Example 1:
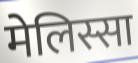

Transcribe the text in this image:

मेलिस्सा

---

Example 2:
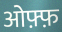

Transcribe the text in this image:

ओफ़्फ़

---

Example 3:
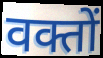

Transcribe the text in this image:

वक्तों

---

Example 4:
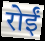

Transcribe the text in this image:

रोईं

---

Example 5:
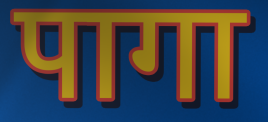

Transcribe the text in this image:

पागा